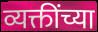
व्यक्तींच्या